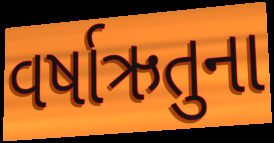
વર્ષાઋતુના